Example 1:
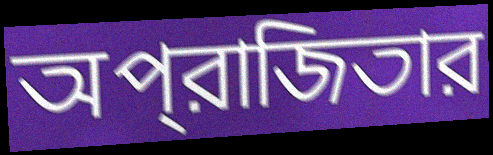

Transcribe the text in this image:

অপ্‌রাজিতার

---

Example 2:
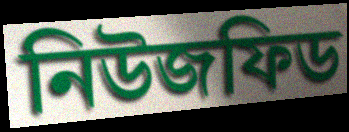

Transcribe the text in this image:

নিউজফিড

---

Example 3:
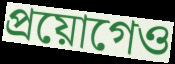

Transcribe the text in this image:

প্রয়োগেও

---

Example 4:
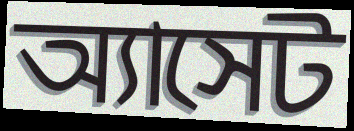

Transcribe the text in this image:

অ্যাসেট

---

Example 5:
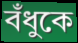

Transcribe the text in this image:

বঁধুকে